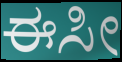
ಈಸೀ